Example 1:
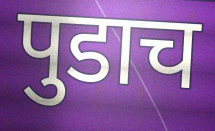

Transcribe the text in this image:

पुडाच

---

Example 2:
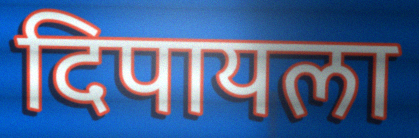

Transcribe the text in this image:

दिपायला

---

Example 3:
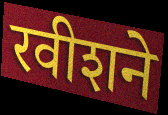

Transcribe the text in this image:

रवीशने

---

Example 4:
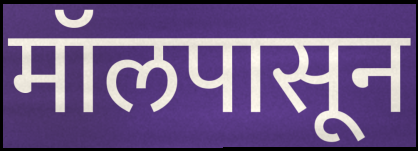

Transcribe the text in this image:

मॉलपासून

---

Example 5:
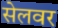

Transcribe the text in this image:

सेलवर